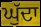
ਘੁੱਦਾ